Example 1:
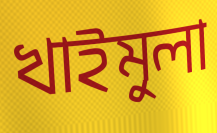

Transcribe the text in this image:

খাইমুলা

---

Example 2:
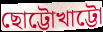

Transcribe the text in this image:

ছোট্টোখাট্টো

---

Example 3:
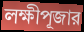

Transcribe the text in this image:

লক্ষীপূজার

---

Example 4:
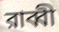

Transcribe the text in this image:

রাব্বী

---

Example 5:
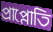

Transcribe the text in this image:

প্রাপ্নোতি